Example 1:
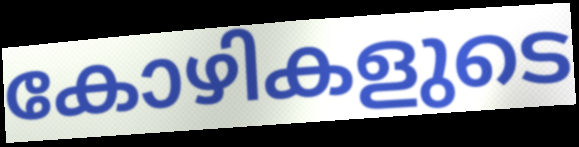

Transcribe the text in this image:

കോഴികളുടെ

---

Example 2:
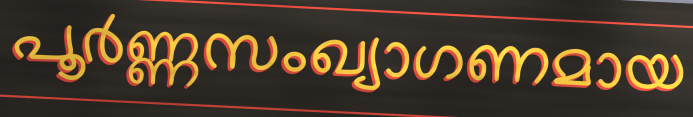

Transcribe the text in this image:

പൂർണ്ണസംഖ്യാഗണമായ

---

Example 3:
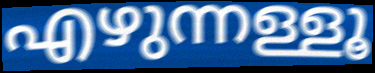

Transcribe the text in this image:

എഴുന്നള്ളൂ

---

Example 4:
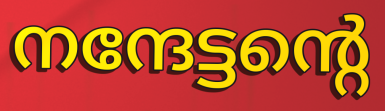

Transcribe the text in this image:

നന്ദേട്ടന്റെ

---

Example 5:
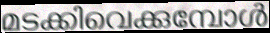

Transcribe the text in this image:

മടക്കിവെക്കുമ്പോൾ